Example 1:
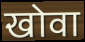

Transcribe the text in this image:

खोवा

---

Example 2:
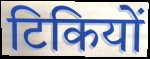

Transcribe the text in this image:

टिकियों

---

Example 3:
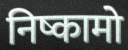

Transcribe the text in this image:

निष्कामो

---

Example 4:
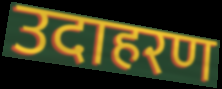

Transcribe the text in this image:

उदाहरण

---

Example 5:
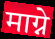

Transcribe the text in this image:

माग्ने